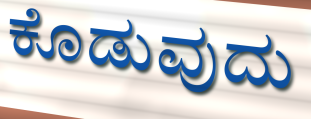
ಕೊಡುವುದು